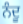
ਨੰਦੂ